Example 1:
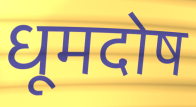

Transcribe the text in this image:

धूमदोष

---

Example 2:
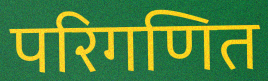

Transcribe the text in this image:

परिगणित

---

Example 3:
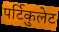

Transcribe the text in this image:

पर्टिकुलेट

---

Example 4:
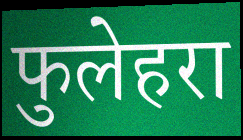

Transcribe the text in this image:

फुलेहरा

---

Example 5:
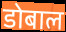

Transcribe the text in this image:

डोबाल